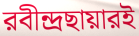
রবীন্দ্রছায়ারই